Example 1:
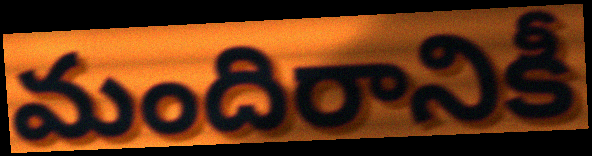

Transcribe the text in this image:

మందిరానికీ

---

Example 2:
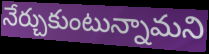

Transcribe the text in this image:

నేర్చుకుంటున్నామని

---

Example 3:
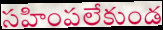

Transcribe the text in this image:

సహింపలేకుండ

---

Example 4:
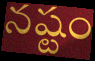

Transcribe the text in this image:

నష్టం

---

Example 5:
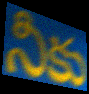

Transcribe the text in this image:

నీకు